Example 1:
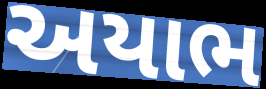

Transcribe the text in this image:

અયાભ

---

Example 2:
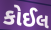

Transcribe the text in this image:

કોઈલ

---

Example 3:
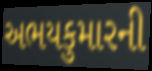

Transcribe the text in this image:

અભયકુમારની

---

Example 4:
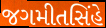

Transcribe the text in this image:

જગમીતસિંહે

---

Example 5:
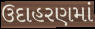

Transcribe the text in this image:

ઉદાહરણમાં